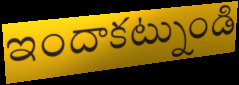
ఇందాకట్నుండి